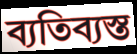
ব্যতিব্যস্ত